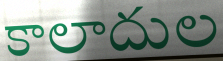
కాలాదుల